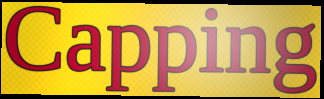
Capping